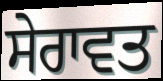
ਸੇਰਾਵਤ